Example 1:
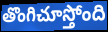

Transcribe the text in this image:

తొంగిచూస్తోంది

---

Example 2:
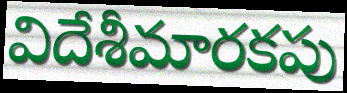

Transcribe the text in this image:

విదేశీమారకపు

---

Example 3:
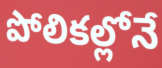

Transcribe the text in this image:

పోలికల్లోనే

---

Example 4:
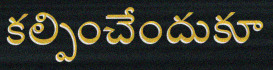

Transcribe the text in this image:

కల్పించేందుకూ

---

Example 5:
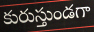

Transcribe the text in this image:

కురుస్తుండగా